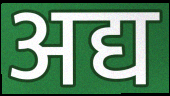
अद्य